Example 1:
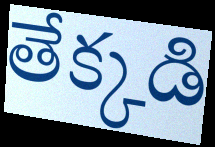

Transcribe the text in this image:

తేక్కడి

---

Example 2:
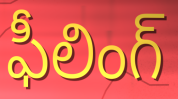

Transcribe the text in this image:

ఫీలింగ్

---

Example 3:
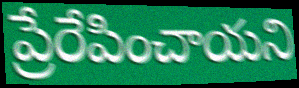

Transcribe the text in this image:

ప్రేరేపించాయని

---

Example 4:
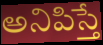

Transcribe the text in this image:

అనిపిస్తే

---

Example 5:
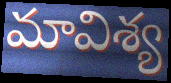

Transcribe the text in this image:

మావిశ్య